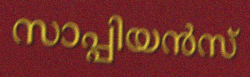
സാപ്പിയൻസ്